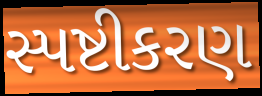
સ્પષ્ટીકરણ